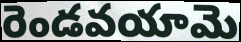
రెండవయామె